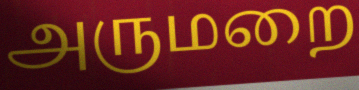
அருமறை